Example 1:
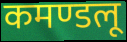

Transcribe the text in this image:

कमण्डलू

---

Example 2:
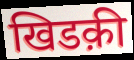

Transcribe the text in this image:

खिडक़ी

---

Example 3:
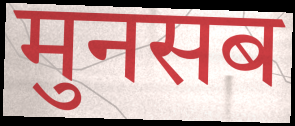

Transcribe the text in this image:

मुनसब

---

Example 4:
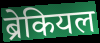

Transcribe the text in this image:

ब्रेकियल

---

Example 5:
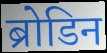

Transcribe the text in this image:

ब्रोडिन